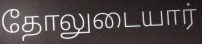
தோலுடையார்